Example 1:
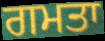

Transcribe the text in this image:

ਗਮਤਾ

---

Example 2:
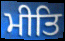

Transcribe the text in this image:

ਮੀਤਿ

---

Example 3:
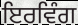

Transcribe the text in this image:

ਇਰਵਿੰਗ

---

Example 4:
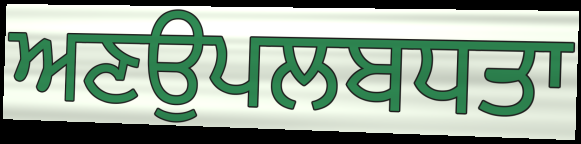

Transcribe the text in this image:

ਅਣਉਪਲਬਧਤਾ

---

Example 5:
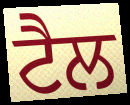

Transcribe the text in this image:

ਟੈਲ